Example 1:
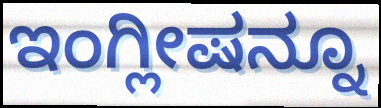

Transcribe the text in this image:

ಇಂಗ್ಲೀಷನ್ನೂ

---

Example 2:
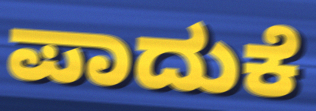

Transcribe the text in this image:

ಪಾದುಕೆ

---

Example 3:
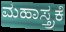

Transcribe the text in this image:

ಮಹಾಸ್ತ್ರಕೆ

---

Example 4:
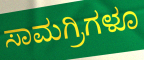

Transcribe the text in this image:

ಸಾಮಗ್ರಿಗಳೂ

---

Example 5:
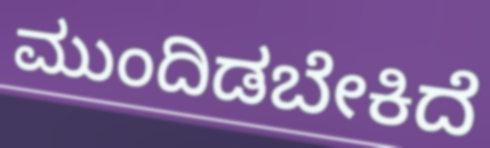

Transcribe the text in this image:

ಮುಂದಿಡಬೇಕಿದೆ